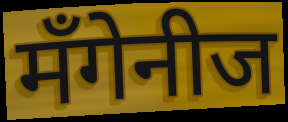
मँगेनीज